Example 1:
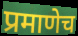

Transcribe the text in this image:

प्रमाणेच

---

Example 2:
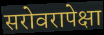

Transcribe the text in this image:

सरोवरापेक्षा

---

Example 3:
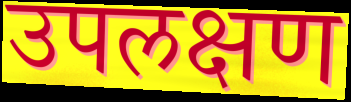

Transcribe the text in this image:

उपलक्षण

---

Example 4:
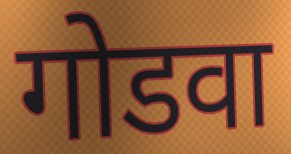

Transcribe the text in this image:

गोडवा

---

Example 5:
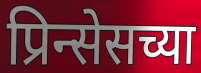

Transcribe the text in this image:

प्रिन्सेसच्या